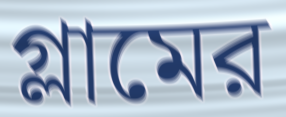
গ্লামের